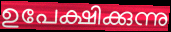
ഉപേക്ഷിക്കുന്നു